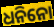
ଧନିନୋ